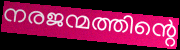
നരജന്മത്തിന്റെ